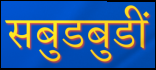
सबुडबुडीं